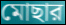
মোছার